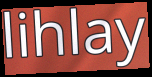
lihlay